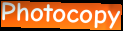
Photocopy